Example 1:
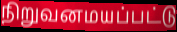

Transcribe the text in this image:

நிறுவனமயப்பட்டு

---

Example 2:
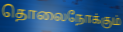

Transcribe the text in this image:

தொலைநோக்கும்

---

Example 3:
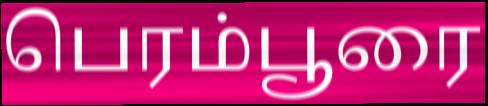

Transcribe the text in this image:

பெரம்பூரை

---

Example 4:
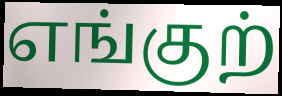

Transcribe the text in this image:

எங்குற்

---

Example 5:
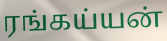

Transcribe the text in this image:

ரங்கய்யன்